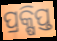
ପ୍ରକ୍ଷିପ୍ତ